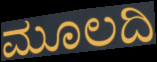
ಮೂಲದಿ